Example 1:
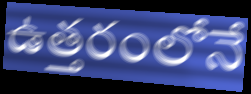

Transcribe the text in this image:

ఉత్తరంలోనే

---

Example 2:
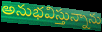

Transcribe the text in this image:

అనుభవిస్తున్నాను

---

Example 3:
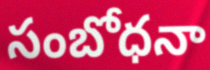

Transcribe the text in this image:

సంబోధనా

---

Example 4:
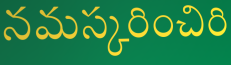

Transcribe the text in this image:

నమస్కరించిరి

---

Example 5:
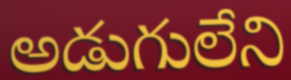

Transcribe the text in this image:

అడుగులేని